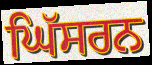
ਘਿੱਸਰਨ